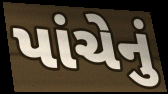
પાંચેનું